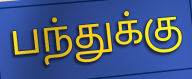
பந்துக்கு